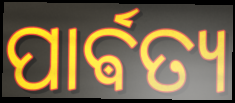
ପାର୍ଵତ୍ଯ